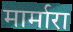
मार्मारा